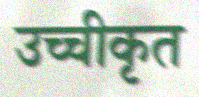
उच्चीकृत